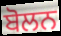
ਬੋਲਨ